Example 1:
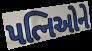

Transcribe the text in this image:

પત્નિઓને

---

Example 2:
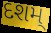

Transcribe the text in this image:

દશમ્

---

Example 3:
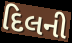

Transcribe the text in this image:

દિલની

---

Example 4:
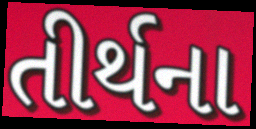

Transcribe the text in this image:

તીર્થના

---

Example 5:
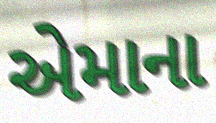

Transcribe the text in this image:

એમાના